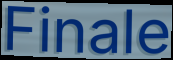
Finale